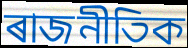
ৰাজনীতিক